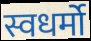
स्वधर्मो